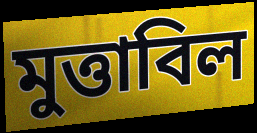
মুত্তাবিল